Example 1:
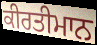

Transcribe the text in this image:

ਕੀਰਤੀਮਾਨ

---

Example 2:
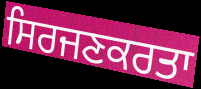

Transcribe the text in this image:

ਸਿਰਜਣਕਰਤਾ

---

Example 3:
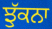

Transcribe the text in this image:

ਝੁੱਕਨਾ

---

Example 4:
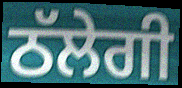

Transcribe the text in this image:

ਠੱਲੇਗੀ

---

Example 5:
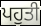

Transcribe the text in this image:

ਪਹੁਤੀ